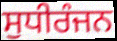
ਸੁਧੀਰੰਜਨ